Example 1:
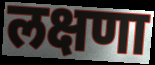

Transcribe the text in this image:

लक्षणा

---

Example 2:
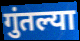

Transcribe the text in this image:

गुंतल्या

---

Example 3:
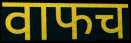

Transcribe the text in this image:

वाफच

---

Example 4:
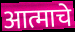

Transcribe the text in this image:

आत्माचे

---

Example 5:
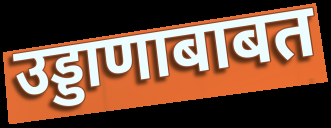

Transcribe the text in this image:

उड्डाणाबाबत